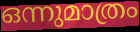
ഒന്നുമാത്രം